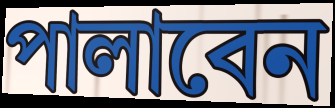
পালাবেন